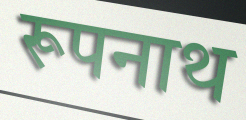
रूपनाथ